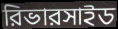
রিভারসাইড